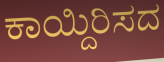
ಕಾಯ್ದಿರಿಸದ